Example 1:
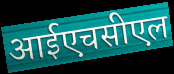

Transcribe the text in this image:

आईएचसीएल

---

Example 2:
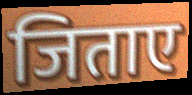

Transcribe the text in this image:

जिताए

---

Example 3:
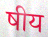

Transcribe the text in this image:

षीय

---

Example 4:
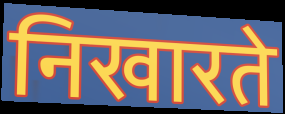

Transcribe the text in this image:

निखारते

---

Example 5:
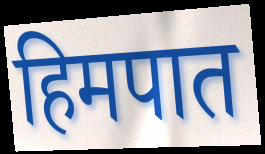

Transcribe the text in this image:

हिमपात